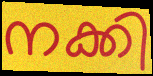
നക്കി